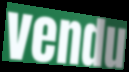
vendu